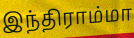
இந்திராம்மா